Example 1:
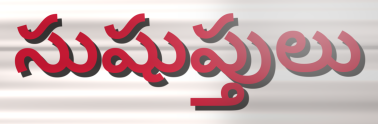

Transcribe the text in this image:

సుషుప్తులు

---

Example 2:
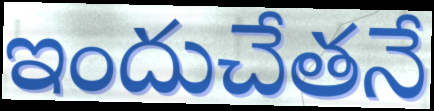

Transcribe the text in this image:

ఇందుచేతనే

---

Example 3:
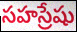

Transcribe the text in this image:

సహస్రేషు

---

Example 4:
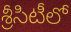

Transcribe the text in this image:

శ్రీసిటీలో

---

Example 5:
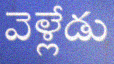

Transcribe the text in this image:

వెళ్లేడు